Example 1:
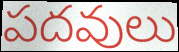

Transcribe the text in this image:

పదవులు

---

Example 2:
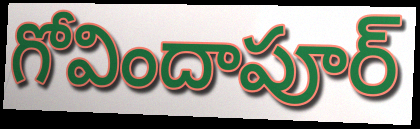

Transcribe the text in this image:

గోవిందాపూర్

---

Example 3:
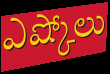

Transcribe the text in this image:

ఎష్కోలు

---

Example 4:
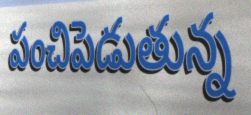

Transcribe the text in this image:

పంచిపెడుతున్న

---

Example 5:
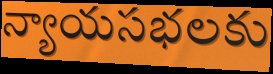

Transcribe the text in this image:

న్యాయసభలకు